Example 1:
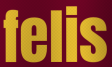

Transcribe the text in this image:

felis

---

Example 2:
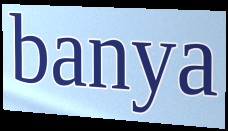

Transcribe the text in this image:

banya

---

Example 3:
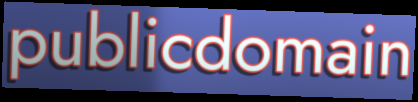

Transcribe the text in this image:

publicdomain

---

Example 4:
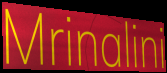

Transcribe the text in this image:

Mrinalini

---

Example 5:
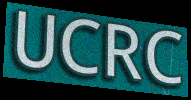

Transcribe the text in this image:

UCRC